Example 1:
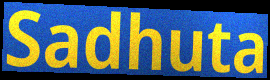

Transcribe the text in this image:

Sadhuta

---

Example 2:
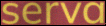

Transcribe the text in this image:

serva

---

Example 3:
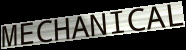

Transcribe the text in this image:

MECHANICAL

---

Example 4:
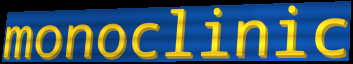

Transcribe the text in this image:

monoclinic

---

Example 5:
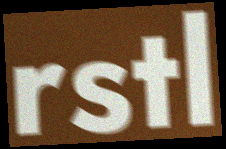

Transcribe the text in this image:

rstl